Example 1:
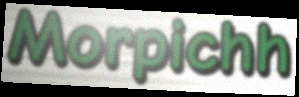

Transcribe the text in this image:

Morpichh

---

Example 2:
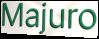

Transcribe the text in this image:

Majuro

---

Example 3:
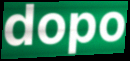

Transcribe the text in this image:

dopo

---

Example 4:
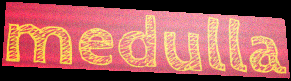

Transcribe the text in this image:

medulla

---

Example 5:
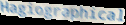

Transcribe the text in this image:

Hagiographical